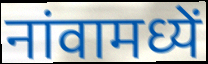
नांवामध्यें